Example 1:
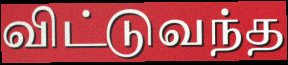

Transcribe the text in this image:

விட்டுவந்த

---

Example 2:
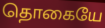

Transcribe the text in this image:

தொகையே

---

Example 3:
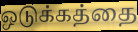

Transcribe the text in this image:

ஒடுக்கத்தை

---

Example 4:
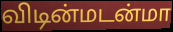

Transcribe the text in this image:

விடின்மடன்மா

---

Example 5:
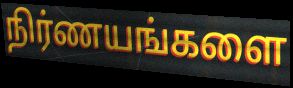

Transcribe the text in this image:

நிர்ணயங்களை